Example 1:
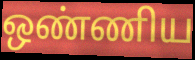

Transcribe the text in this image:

ஒண்ணிய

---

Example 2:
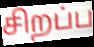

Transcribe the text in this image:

சிறப்ப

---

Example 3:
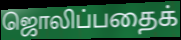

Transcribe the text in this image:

ஜொலிப்பதைக்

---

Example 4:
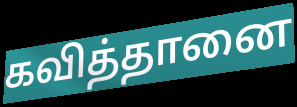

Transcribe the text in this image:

கவித்தானை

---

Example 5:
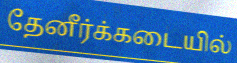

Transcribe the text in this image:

தேனீர்க்கடையில்